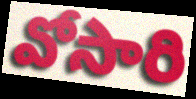
వోసారి